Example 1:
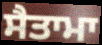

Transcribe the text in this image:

ਸੈਤਾਮਾ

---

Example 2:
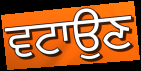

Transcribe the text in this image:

ਵਟਾਉਣ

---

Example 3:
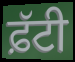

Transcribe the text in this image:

ਫ਼ੱਟੀ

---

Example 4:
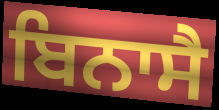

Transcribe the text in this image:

ਬਿਨਾਸੈ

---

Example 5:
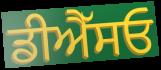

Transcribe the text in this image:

ਡੀਐੱਸਓ